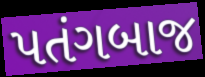
પતંગબાજ